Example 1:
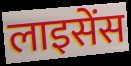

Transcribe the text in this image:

लाइसेंस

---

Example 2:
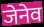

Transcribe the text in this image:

जेनेव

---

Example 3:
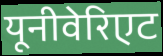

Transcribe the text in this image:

यूनीवेरिएट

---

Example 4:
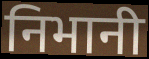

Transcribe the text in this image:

निभानी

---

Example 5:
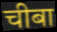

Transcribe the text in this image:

चीबा